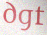
dgt